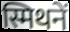
स्मिथनें